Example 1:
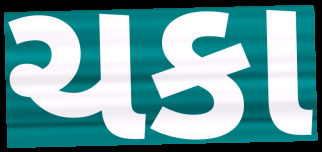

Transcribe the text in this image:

ચકા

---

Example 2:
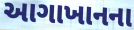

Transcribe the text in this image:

આગાખાનના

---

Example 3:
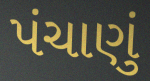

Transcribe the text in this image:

પંચાણું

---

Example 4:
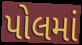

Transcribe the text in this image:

પોલમાં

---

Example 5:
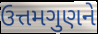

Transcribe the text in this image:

ઉત્તમગુણને